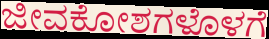
ಜೀವಕೋಶಗಳೊಳಗೆ